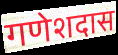
गणेशदास